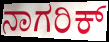
ನಾಗರಿಕ್